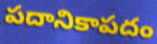
పదానికాపదం